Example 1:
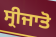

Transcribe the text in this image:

ਸ੍ਰੀਜਾਤੋ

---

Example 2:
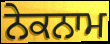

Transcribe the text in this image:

ਨੇਕਨਾਮ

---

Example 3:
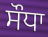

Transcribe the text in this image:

ਸੌਧਾ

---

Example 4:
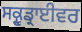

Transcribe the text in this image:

ਸਕ੍ਰੂਡ੍ਰਾਈਵਰ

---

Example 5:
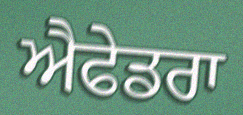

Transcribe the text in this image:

ਐਫੇਡਰਾ